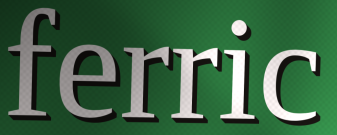
ferric